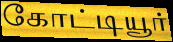
கோட்டியூர்